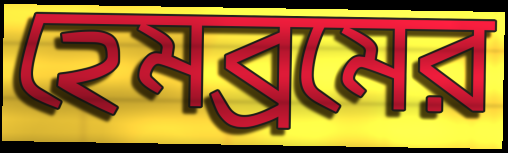
হেমব্রমের